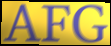
AFG